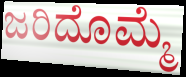
ಜರಿದೊಮ್ಮೆ